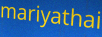
mariyathai